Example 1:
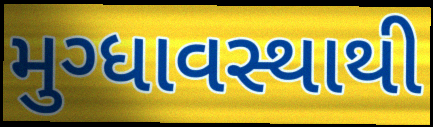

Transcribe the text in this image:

મુગ્ધાવસ્થાથી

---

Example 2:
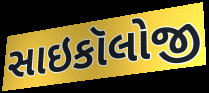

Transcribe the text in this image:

સાઇકૉલોજી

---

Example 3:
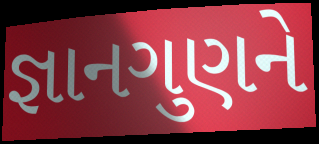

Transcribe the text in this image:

જ્ઞાનગુણને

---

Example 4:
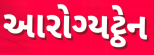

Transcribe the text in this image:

આરોગ્યટ્ઠેન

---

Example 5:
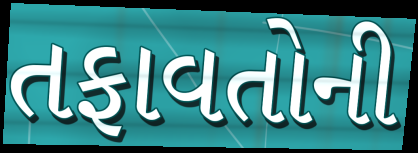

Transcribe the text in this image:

તફાવતોની